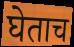
घेताच